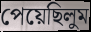
পেয়েছিলুম